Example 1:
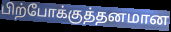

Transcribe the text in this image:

பிற்போக்குத்தனமான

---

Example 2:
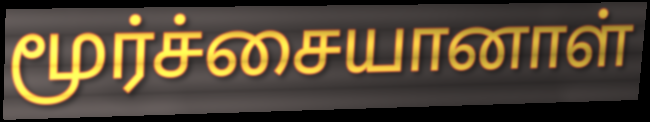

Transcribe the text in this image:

மூர்ச்சையானாள்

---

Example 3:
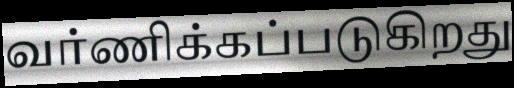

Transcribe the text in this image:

வர்ணிக்கப்படுகிறது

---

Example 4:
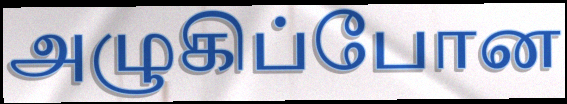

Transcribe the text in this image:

அழுகிப்போன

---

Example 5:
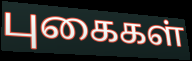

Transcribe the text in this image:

புகைகள்